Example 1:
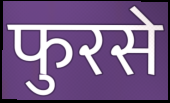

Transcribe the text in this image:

फुरसे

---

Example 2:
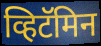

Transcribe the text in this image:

व्हिटॅमिन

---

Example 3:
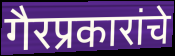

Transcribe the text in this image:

गैरप्रकारांचे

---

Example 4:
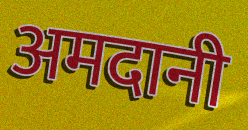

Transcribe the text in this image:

अमदानी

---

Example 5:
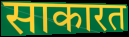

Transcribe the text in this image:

साकारत